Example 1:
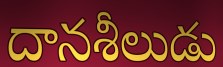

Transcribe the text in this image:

దానశీలుడు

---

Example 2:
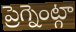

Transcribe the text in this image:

ప్రెగ్నెంట్గా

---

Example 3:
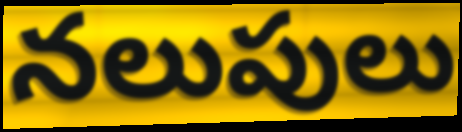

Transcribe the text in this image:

నలుపులు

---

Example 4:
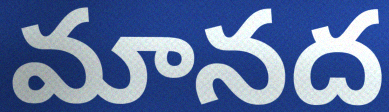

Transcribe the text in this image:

మానద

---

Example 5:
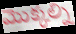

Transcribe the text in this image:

మొక్కల్ని